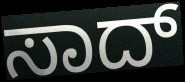
ಸಾದ್